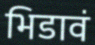
भिडावं